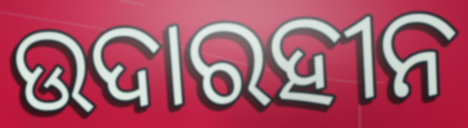
ଉଦାରହୀନ